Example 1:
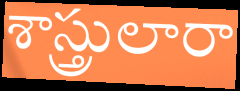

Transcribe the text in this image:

శాస్త్రులారా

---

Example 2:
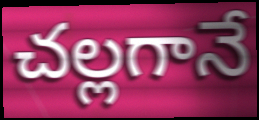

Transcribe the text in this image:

చల్లగానే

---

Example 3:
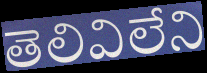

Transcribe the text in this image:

తెలివిలేని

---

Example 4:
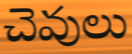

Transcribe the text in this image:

చెవులు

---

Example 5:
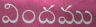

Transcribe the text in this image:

విందము